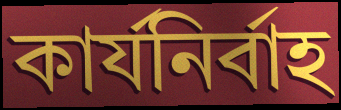
কাৰ্যনিৰ্বাহ